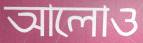
আলোও